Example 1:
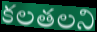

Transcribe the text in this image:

కలతలని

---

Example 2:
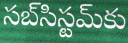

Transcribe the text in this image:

సబ్‌సిస్టమ్‌కు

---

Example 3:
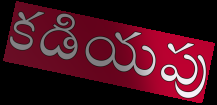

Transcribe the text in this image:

కడియపు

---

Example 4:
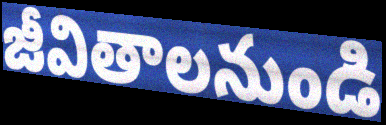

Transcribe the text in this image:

జీవితాలనుండి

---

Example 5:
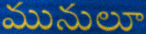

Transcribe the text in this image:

మునులూ